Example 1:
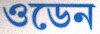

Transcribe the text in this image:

ওডেন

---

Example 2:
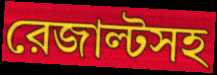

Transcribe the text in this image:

রেজাল্টসহ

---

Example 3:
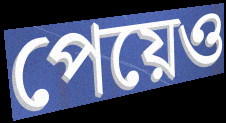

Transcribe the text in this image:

পেয়েও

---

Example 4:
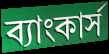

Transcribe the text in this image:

ব্যাংকার্স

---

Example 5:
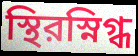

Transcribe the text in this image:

স্থিরস্নিগ্ধ